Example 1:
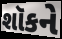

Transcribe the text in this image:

શૉકને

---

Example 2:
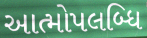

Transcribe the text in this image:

આત્મોપલબ્ધિ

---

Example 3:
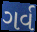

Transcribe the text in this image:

ગર્વ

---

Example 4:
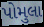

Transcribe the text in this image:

પોમુલા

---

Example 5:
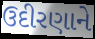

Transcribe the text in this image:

ઉદીરણાને